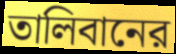
তালিবানের